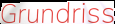
Grundriss